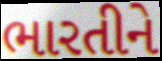
ભારતીને